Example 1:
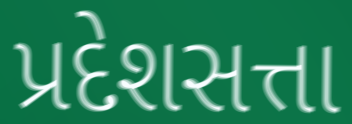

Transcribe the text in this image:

પ્રદેશસત્તા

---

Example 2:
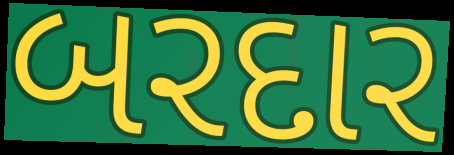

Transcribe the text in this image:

બરદાર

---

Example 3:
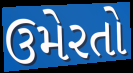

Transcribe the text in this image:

ઉમેરતો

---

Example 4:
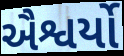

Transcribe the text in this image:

ઐશ્વર્યો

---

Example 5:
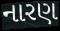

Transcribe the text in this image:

નારણ